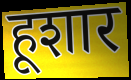
हूशार